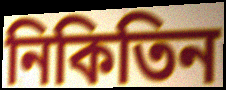
নিকিতিন